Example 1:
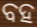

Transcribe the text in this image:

ବହ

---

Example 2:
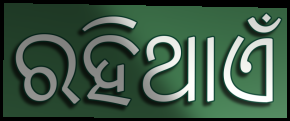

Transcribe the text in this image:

ରହିଥାଏଁ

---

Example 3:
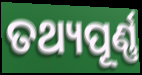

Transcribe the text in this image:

ତଥ୍ୟପୂର୍ଣ୍ଣ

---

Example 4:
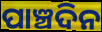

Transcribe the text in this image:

ପାଞ୍ଚଦିନ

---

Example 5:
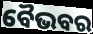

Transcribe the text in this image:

ବୈଭବର